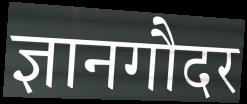
ज्ञानगौदर